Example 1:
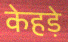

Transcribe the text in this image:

केहड़े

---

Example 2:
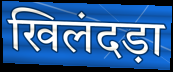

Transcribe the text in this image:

खिलंदड़ा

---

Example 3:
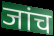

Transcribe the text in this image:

जांच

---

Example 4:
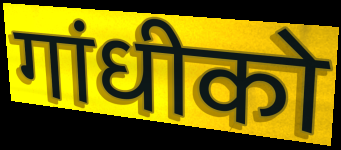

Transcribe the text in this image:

गांधीको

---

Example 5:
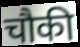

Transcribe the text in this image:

चौकी